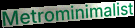
Metrominimalist